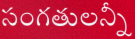
సంగతులన్నీ